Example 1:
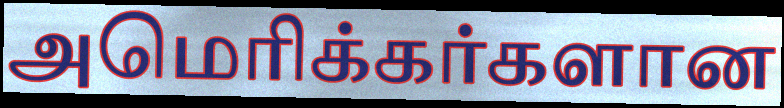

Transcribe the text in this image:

அமெரிக்கர்களான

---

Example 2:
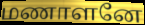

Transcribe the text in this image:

மணாளனே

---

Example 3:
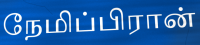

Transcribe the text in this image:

நேமிப்பிரான்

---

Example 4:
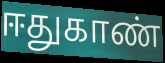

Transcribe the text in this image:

ஈதுகாண்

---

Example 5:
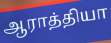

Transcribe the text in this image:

ஆராத்தியா